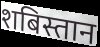
शबिस्तान